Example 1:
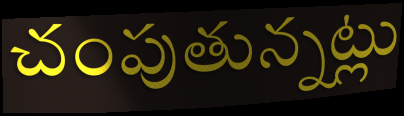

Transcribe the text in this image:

చంపుతున్నట్లు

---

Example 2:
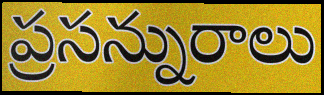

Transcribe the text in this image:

ప్రసన్నురాలు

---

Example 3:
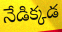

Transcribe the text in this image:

నేడిక్కడ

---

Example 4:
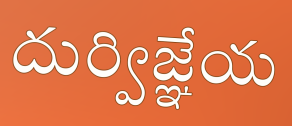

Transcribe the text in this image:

దుర్విజ్ఞేయ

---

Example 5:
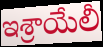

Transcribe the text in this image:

ఇశ్రాయేలీ